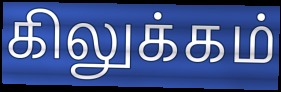
கிலுக்கம்